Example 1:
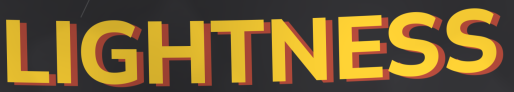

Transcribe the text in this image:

LIGHTNESS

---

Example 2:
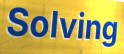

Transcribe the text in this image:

Solving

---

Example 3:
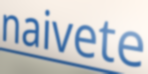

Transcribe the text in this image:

naivete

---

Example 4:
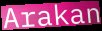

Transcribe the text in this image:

Arakan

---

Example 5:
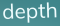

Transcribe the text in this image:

depth